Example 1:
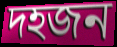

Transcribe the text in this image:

দহজন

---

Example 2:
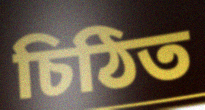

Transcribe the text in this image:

চিঠিত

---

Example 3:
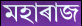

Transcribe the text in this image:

মহাৰাজ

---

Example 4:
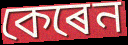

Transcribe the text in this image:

কেৰেন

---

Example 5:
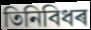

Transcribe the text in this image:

তিনিবিধৰ